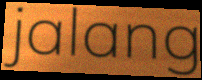
jalang